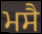
ਮਸੈ